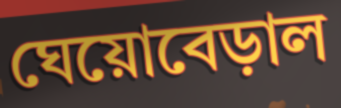
ঘেয়োবেড়াল